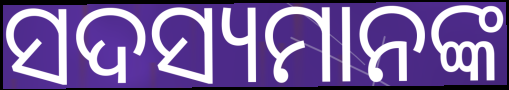
ସଦସ୍ୟମାନଙ୍କ